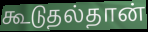
கூடுதல்தான்